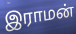
இராமன்